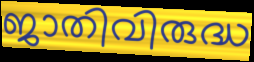
ജാതിവിരുദ്ധ